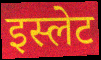
इस्लेट